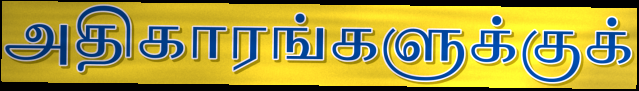
அதிகாரங்களுக்குக்